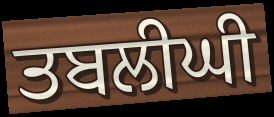
ਤਬਲੀਘੀ